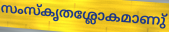
സംസ്കൃതശ്ലോകമാണു്